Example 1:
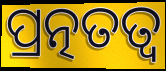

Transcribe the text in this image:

ପ୍ରତ୍ନତତ୍ୱ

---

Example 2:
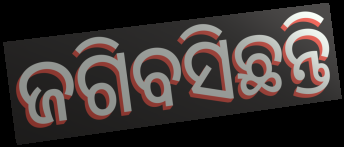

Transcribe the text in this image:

ଜଗିବସିଛନ୍ତି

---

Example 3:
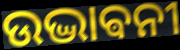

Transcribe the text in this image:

ଉଦ୍ଭାଵନୀ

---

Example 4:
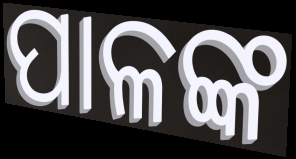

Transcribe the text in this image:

ପାଳଙ୍କ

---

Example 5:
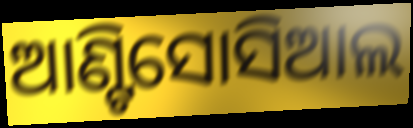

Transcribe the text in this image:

ଆଣ୍ଟିସୋସିଆଲ